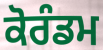
ਕੋਰੰਡਮ